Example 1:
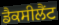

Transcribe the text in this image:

ਡੈਕਸੀਲੈਂਟ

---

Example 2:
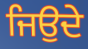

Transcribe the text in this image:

ਜਿਉਦੇ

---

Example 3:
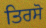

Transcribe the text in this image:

ਤਿਰਸੋ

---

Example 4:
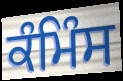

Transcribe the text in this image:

ਕੰਮਿੰਸ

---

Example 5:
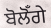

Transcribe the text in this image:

ਬੋਲੋਁਗੇ